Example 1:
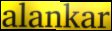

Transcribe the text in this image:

alankar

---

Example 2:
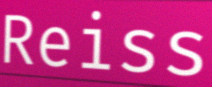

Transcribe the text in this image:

Reiss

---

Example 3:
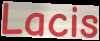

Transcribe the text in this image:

Lacis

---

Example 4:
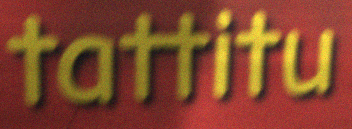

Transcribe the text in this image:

tattitu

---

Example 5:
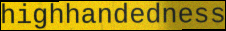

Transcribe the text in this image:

highhandedness